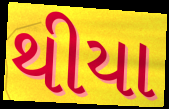
થીયા